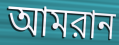
আমরান